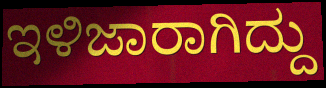
ಇಳಿಜಾರಾಗಿದ್ದು